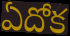
ఏదోక